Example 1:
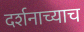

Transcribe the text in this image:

दर्शनाच्याच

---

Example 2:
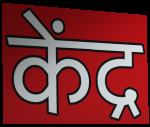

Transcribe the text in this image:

केंद्र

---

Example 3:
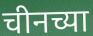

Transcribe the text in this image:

चीनच्या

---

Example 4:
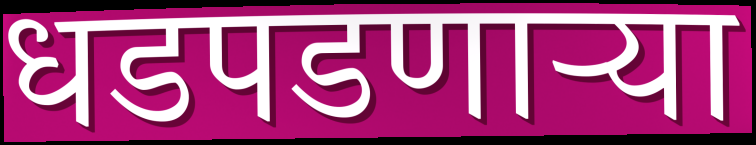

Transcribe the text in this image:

धडपडणाऱ्या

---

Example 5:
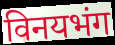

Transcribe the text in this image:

विनयभंग